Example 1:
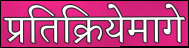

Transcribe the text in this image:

प्रतिक्रियेमागे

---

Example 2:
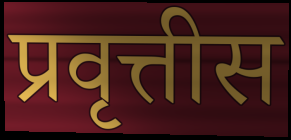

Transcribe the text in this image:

प्रवृत्तीस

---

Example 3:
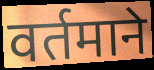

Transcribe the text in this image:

वर्तमाने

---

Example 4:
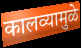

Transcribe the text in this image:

कालव्यामुळे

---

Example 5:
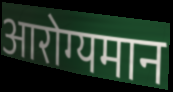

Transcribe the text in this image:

आरोग्यमान